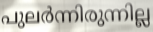
പുലർന്നിരുന്നില്ല